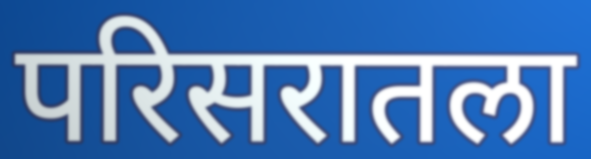
परिसरातला